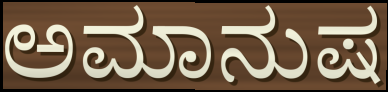
ಅಮಾನುಷ